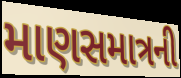
માણસમાત્રની